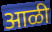
आळी